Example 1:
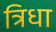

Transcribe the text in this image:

त्रिधा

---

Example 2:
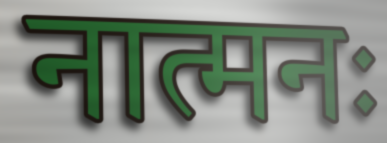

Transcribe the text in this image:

नात्मनः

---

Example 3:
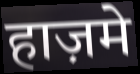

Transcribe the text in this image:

हाज़मे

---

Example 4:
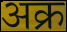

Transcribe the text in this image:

अक्र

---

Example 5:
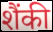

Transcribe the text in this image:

शैंकी